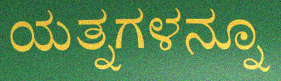
ಯತ್ನಗಳನ್ನೂ